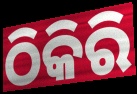
ଠିକିରି